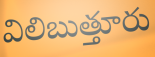
విలిబుత్తూరు